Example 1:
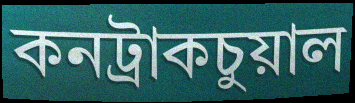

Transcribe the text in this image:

কনট্রাকচুয়াল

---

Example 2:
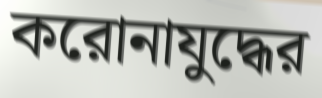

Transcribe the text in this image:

করোনাযুদ্ধের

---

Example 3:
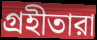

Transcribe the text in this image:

গ্রহীতারা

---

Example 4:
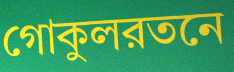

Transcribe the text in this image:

গোকুলরতনে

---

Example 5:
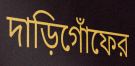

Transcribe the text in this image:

দাড়িগোঁফের